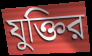
যুক্তির